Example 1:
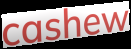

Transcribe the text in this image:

cashew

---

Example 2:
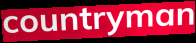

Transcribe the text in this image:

countryman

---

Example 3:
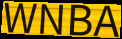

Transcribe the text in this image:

WNBA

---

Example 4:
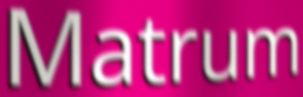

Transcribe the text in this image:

Matrum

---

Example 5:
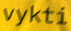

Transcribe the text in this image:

vykti